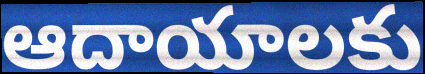
ఆదాయాలకు